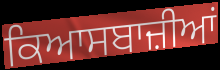
ਕਿਆਸਬਾਜ਼ੀਆਂ